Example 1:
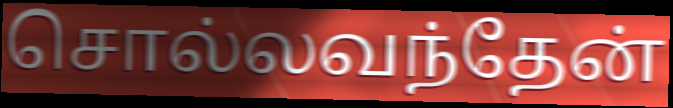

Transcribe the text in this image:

சொல்லவந்தேன்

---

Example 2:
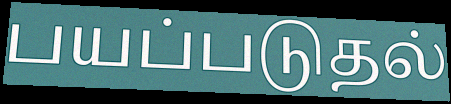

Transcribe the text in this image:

பயப்படுதல்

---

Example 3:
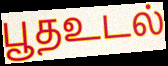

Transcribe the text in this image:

பூதஉடல்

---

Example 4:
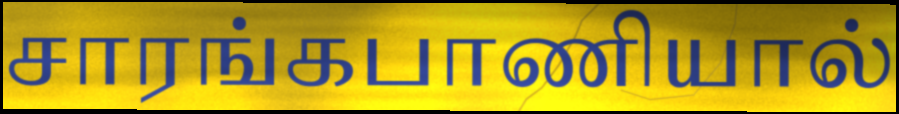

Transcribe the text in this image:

சாரங்கபாணியால்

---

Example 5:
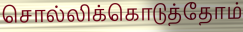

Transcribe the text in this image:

சொல்லிக்கொடுத்தோம்